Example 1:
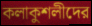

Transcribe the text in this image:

কলাকুশলীদের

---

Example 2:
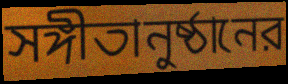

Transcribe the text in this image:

সঙ্গীতানুষ্ঠানের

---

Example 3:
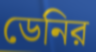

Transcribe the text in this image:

ডেনির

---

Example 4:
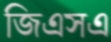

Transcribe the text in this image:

জিএসএ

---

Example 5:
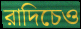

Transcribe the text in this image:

রাদিচেও